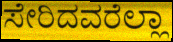
ಸೇರಿದವರೆಲ್ಲಾ